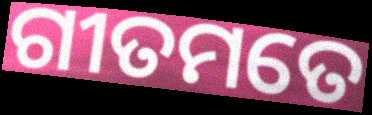
ଗୀତମତେ